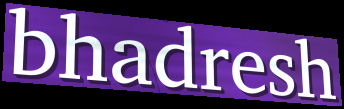
bhadresh